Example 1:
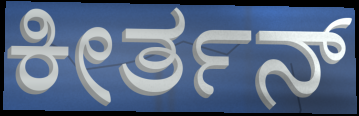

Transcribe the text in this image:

ಕೀರ್ತನ್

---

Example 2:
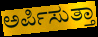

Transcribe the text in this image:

ಅರ್ಪಿಸುತ್ತಾ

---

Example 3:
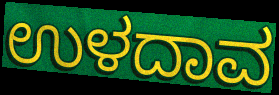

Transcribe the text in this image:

ಉಳದಾವ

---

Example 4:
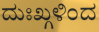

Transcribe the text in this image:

ದುಃಖ್ಗಳಿಂದ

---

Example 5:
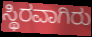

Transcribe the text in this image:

ಸ್ಥಿರವಾಗಿರು